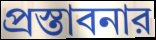
প্রস্তাবনার